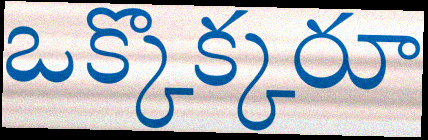
ఒక్కొక్కరూ